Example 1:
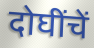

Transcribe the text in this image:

दोघींचें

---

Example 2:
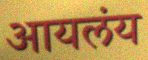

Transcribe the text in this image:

आयलंय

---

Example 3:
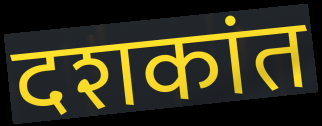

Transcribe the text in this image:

दशकांत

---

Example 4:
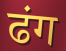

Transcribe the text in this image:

ढंग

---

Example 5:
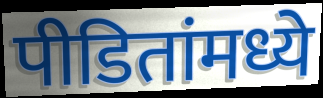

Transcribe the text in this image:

पीडितांमध्ये